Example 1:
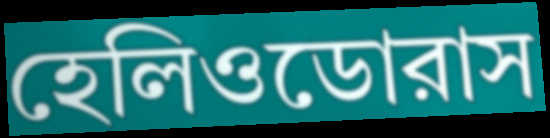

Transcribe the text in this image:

হেলিওডোরাস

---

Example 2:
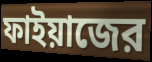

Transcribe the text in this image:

ফাইয়াজের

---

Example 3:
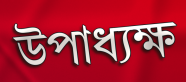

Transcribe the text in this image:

উপাধ্যক্ষ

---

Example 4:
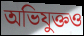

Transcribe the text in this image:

অভিযুক্তও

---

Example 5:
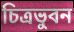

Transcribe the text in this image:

চিত্রভুবন